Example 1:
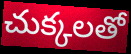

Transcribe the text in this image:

చుక్కలతో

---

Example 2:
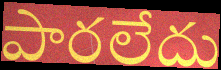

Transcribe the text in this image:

పారలేదు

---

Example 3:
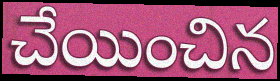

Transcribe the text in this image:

చేయించిన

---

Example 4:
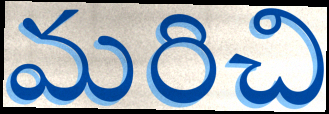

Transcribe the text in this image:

మరిచి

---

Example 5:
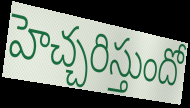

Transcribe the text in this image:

హెచ్చరిస్తుందో